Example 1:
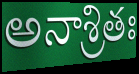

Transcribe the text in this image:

అనాశ్రితః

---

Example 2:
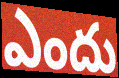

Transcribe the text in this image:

ఎందు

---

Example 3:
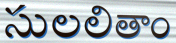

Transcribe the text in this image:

సులలితాం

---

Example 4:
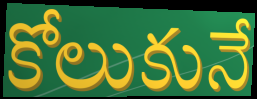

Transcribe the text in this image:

కోలుకునే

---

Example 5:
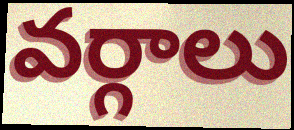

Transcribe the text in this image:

వర్గాలు